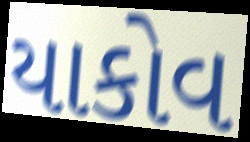
યાકોવ